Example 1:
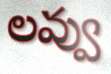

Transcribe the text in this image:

లవ్వు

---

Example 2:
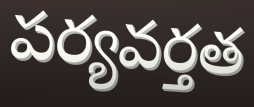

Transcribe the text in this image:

పర్యవర్తత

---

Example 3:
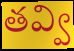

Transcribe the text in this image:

తవ్వి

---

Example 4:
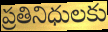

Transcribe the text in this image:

ప్రతినిధులకు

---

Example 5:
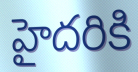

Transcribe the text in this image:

హైదరికి